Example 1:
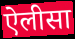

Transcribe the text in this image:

ऐलीसा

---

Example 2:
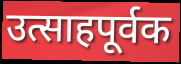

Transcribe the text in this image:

उत्साहपूर्वक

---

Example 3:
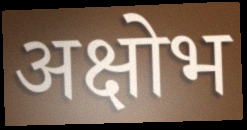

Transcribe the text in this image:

अक्षोभ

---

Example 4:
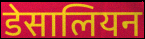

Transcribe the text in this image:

डेसालियन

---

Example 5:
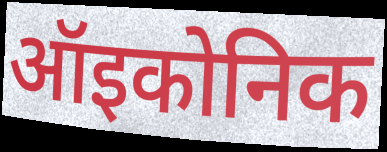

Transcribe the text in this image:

ऑइकोनिक